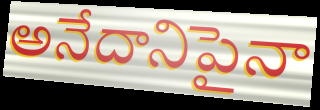
అనేదానిపైనా